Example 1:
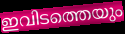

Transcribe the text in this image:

ഇവിടത്തെയും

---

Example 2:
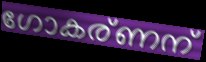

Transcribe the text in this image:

ഗോകര്ണന്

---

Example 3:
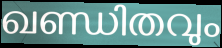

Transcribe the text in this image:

ഖണ്ഡിതവും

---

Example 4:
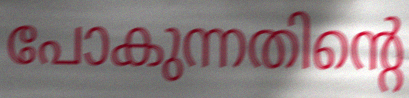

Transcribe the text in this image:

പോകുന്നതിന്റെ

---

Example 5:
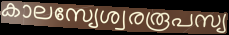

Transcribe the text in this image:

കാലസ്യേശ്വരരൂപസ്യ